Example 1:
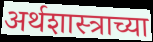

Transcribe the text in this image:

अर्थशास्त्राच्या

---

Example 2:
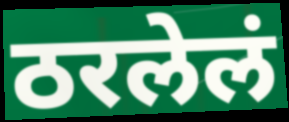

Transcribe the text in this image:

ठरलेलं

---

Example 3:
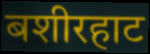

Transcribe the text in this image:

बशीरहाट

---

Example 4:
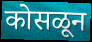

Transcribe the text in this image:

कोसळून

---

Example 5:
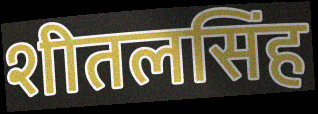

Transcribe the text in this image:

शीतलसिंह